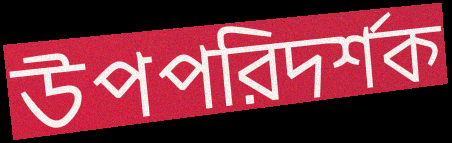
উপপরিদর্শক